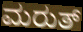
ಮರುತ್